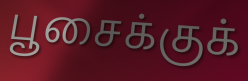
பூசைக்குக்